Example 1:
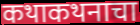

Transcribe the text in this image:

कथाकथनाचा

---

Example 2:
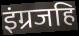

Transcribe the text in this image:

इंग्रजहि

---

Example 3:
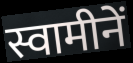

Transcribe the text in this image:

स्वामीनें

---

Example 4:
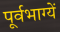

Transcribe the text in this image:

पूर्वभाग्यें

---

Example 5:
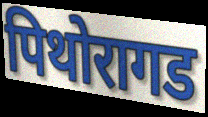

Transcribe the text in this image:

पिथोरागड